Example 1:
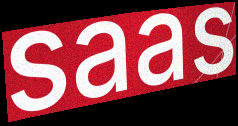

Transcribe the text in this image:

saas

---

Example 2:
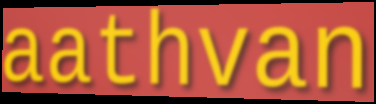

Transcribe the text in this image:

aathvan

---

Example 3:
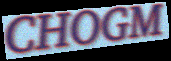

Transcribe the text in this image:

CHOGM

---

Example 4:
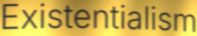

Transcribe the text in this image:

Existentialism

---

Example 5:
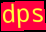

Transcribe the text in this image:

dps